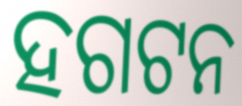
ହଗଟନ